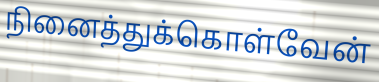
நினைத்துக்கொள்வேன்